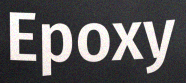
Epoxy